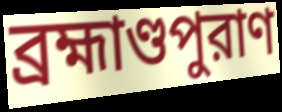
ব্রহ্মাণ্ডপুরাণ